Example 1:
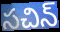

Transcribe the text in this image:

సచిన్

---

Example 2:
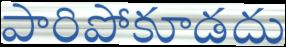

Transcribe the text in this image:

పారిపోకూడదు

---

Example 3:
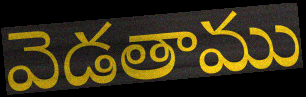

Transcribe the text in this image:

వెడతాము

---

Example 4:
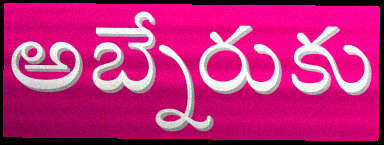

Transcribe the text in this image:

అబ్నేరుకు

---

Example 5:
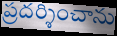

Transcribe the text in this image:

ప్రదర్శించాను